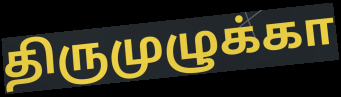
திருமுழுக்கா